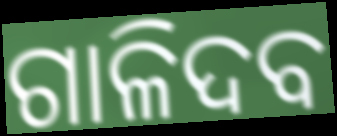
ଗାଳିଦବ